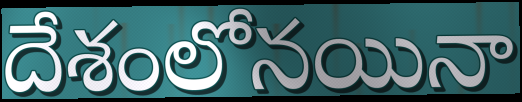
దేశంలోనయినా